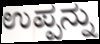
ಉಪ್ಪನ್ನು